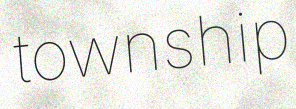
township